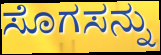
ಸೊಗಸನ್ನು